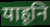
याहूनि